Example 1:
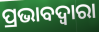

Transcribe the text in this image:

ପ୍ରଭାବଦ୍ୱାରା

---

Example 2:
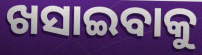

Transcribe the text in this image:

ଖସାଇବାକୁ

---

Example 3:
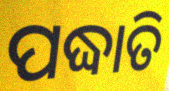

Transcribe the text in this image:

ପଦ୍ଧାତି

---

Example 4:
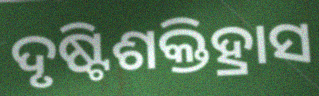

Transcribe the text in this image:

ଦୃଷ୍ଟିଶକ୍ତିହ୍ରାସ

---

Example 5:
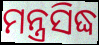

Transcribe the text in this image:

ମନ୍ତ୍ରସିଦ୍ଧ